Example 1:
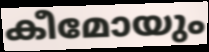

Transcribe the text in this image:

കീമോയും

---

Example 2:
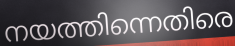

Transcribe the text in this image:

നയത്തിന്നെതിരെ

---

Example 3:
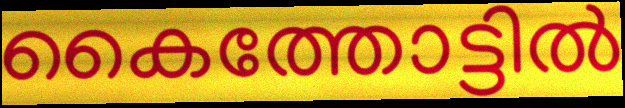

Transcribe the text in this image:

കൈത്തോട്ടിൽ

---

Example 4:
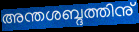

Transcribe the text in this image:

അന്തശബ്ദത്തിനു്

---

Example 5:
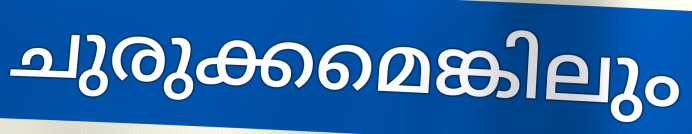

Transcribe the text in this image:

ചുരുക്കമെങ്കിലും